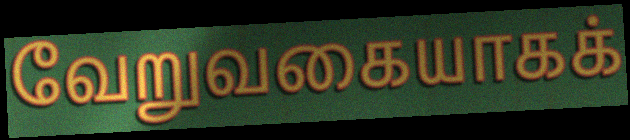
வேறுவகையாகக்